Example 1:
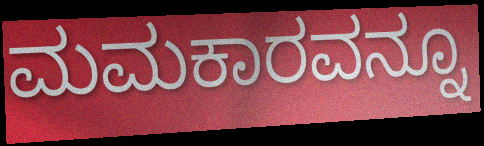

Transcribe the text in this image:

ಮಮಕಾರವನ್ನೂ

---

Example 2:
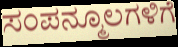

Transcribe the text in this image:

ಸಂಪನ್ಮೂಲಗಳಿಗೆ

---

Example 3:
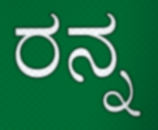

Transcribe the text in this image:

ರನ್ನ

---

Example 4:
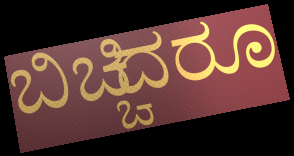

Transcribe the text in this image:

ಬಿಚ್ಚಿದರೂ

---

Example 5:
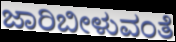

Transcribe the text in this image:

ಜಾರಿಬೀಳುವಂತೆ